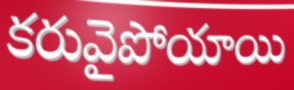
కరువైపోయాయి